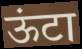
ऊंटा